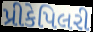
પ્રીકેપિલરી